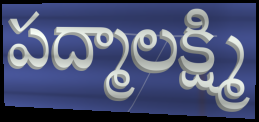
పద్మాలక్ష్మి